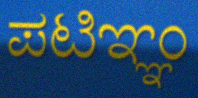
ಪಟಿಞ್ಞಂ